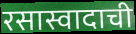
रसास्वादाची